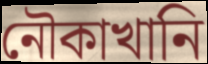
নৌকাখানি